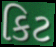
કિટ